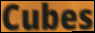
Cubes